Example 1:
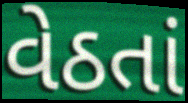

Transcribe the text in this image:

વેઠતાં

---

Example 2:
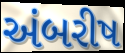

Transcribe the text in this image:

અંબરીષ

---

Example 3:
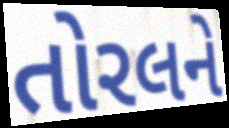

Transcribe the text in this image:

તોરલને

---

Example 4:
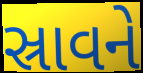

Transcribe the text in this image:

સ્રાવને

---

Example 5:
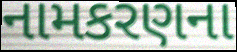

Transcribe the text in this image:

નામકરણના